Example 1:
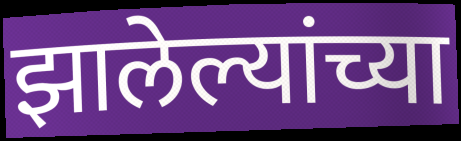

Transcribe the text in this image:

झालेल्यांच्या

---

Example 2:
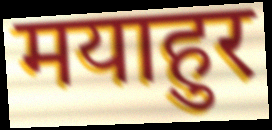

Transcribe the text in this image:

मयाहुर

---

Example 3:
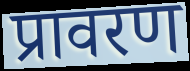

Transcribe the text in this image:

प्रावरण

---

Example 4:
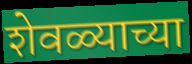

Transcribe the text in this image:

शेवळ्याच्या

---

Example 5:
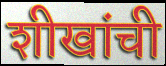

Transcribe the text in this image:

शीखांची